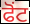
ਫੋਂਟ